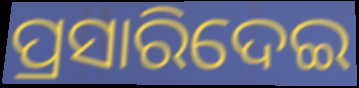
ପ୍ରସାରିଦେଇ